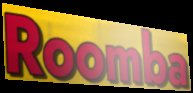
Roomba